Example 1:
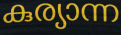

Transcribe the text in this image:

കുര്യാന്ന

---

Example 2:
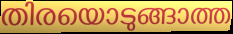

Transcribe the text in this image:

തിരയൊടുങ്ങാത്ത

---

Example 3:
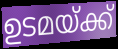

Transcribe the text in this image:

ഉടമയ്ക്ക്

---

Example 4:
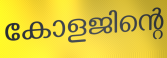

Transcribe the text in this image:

കോളജിന്റെ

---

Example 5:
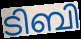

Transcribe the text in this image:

ടിബി